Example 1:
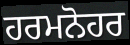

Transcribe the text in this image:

ਹਰਮਨੋਹਰ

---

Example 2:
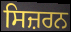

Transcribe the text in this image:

ਸਿਜ਼ਰਨ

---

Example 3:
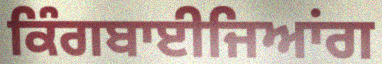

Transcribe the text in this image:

ਕਿੰਗਬਾਈਜਿਆਂਗ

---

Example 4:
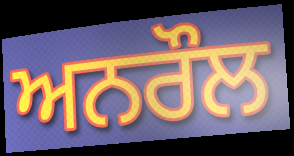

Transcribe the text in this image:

ਅਨਰੌਲ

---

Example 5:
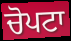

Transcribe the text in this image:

ਚੋਪਟਾ